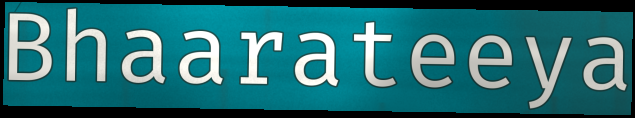
Bhaarateeya